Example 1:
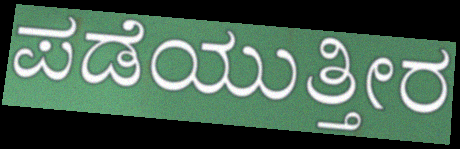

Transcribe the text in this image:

ಪಡೆಯುತ್ತೀರ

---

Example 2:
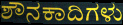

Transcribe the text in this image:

ಶೌನಕಾದಿಗಳು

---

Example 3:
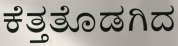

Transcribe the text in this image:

ಕೆತ್ತತೊಡಗಿದ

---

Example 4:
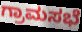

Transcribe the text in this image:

ಗ್ರಾಮಸಭೆ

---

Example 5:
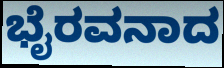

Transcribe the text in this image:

ಭೈರವನಾದ